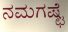
ನಮಗಷ್ಟೆ